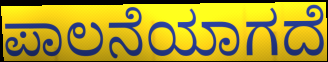
ಪಾಲನೆಯಾಗದೆ